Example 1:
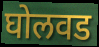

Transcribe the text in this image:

घोलवड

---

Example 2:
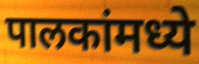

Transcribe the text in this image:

पालकांमध्ये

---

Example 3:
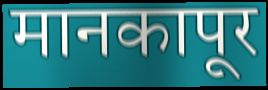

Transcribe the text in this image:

मानकापूर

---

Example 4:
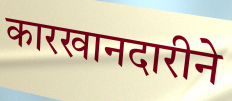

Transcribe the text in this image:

कारखानदारीने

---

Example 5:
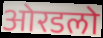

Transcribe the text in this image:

ओरडलो